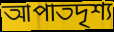
আপাতদৃশ্য